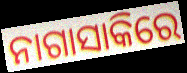
ନାଗାସାକିରେ